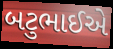
બટુભાઈએ